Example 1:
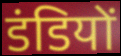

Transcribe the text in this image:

डंडियों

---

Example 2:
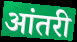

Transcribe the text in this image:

आंतरी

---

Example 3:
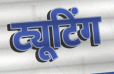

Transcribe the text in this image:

ट्यूटिंग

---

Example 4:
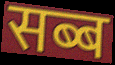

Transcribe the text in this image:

सब्ब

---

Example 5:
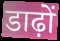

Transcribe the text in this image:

डाढ़ों